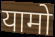
यामो